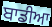
ਬਾਡੀਆ